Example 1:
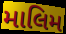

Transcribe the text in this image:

માલિમ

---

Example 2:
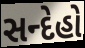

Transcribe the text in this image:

સન્દેહો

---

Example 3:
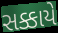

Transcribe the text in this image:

સક્કાયે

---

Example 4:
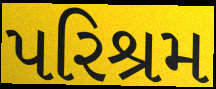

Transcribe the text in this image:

પરિશ્રમ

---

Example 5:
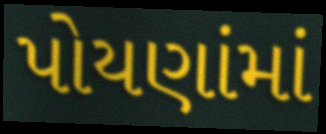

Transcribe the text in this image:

પોયણાંમાં